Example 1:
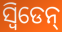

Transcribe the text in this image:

ସ୍ଵିଡେନ୍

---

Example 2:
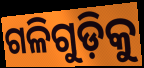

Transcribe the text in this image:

ଗଳିଗୁଡ଼ିକୁ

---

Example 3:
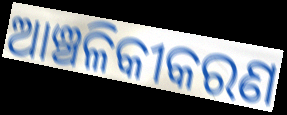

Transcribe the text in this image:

ଆଞ୍ଚଳିକୀକରଣ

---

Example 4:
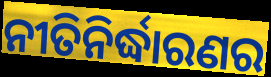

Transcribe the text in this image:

ନୀତିନିର୍ଦ୍ଧାରଣର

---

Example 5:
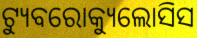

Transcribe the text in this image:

ଟ୍ୟୁବରୋକ୍ୟୁଲୋସିସ